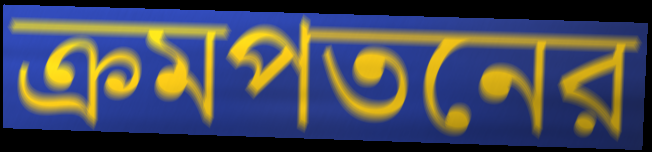
ক্রমপতনের